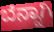
ಬೆನ್ನಾಗಿ